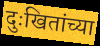
दुःखितांच्या